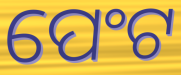
ପେଂଟ